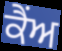
ਕੈਂਅ